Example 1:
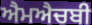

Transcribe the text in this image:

ਐਮਐਚਬੀ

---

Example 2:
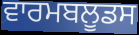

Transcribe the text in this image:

ਵਾਰਮਬਲੂਡਸ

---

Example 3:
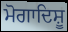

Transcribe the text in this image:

ਮੋਗਾਦਿਸ਼ੂ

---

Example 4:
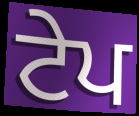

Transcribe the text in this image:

ਟੇਪ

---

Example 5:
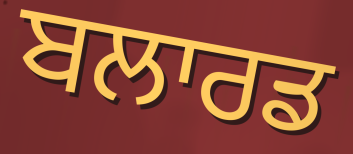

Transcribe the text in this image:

ਬਲਾਰਡ